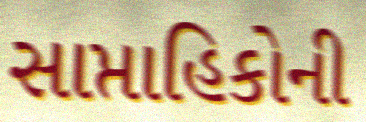
સાપ્તાહિકોની